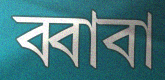
ব্বাবা